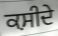
ਕ਼ਸੀਦੇ